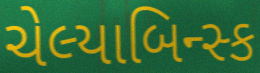
ચેલ્યાબિન્સ્ક